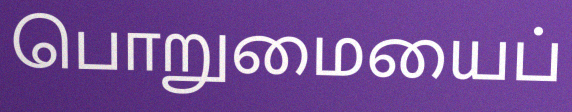
பொறுமையைப்